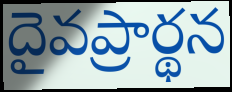
దైవప్రార్థన